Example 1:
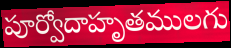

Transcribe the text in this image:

పూర్వోదాహృతములగు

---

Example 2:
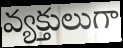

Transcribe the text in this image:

వ్యక్తులుగా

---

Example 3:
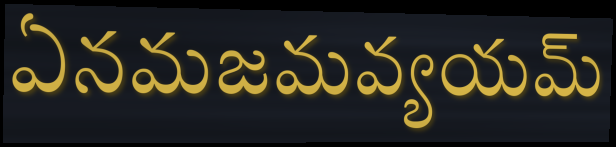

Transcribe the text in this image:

ఏనమజమవ్యయమ్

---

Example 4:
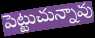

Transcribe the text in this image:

పెట్టుచున్నావు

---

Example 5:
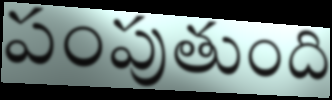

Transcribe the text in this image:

పంపుతుంది